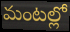
మంటల్లో